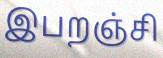
இபறஞ்சி